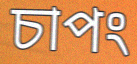
চাপং